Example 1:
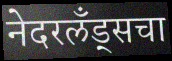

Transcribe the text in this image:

नेदरलँड्सचा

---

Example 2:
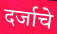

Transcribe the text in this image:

दर्जाचे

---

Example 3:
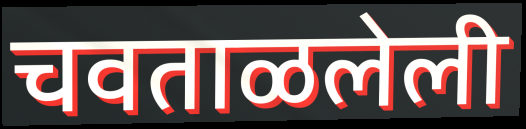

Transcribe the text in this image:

चवताळलेली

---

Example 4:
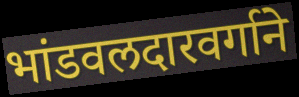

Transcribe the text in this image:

भांडवलदारवर्गाने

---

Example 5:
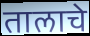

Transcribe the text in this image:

तालाचे